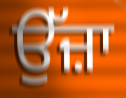
ਉੱਜ਼ਾ